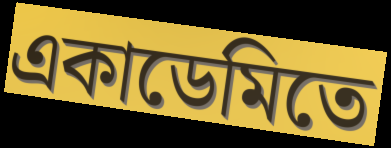
একাডেমিতে